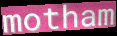
motham